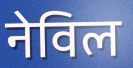
नेविल